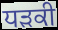
ਧੜਕੀ